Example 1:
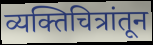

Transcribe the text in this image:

व्यक्तिचित्रांतून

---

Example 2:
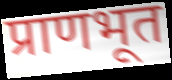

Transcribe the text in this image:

प्राणभूत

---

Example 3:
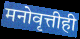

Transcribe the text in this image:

मनोवृत्तीही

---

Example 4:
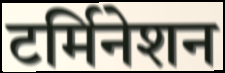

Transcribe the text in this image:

टर्मिनेशन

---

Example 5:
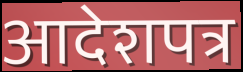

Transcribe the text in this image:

आदेशपत्र